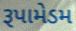
રૂપામેડમ